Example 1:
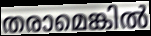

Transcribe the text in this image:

തരാമെങ്കിൽ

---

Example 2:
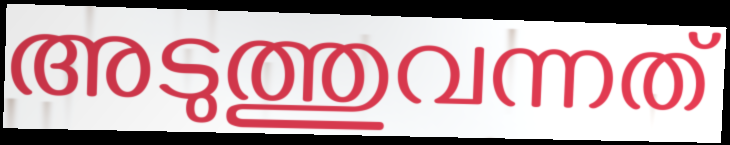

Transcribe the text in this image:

അടുത്തുവന്നത്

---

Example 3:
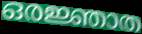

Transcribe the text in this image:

ഒരജ്ഞാത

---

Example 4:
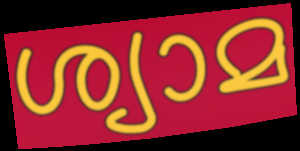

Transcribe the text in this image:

ശ്യാമ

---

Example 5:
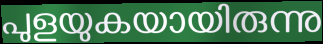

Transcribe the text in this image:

പുളയുകയായിരുന്നു